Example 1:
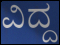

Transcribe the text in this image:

ವಿದ್ದ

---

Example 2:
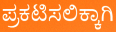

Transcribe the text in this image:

ಪ್ರಕಟಿಸಲಿಕ್ಕಾಗಿ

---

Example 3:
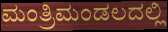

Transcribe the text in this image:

ಮಂತ್ರಿಮಂಡಲದಲ್ಲಿ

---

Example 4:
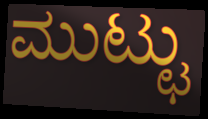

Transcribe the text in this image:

ಮುಟ್ಟು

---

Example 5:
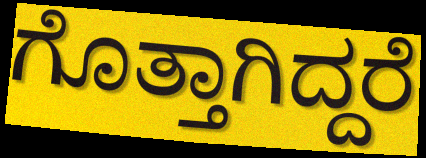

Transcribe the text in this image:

ಗೊತ್ತಾಗಿದ್ದರೆ